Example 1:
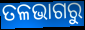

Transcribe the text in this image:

ତଳଭାଗରୁ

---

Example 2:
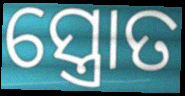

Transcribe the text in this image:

ସ୍ତ୍ରୋତ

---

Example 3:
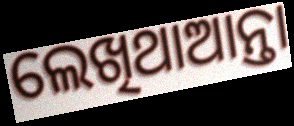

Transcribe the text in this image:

ଲେଖିଥାଆନ୍ତା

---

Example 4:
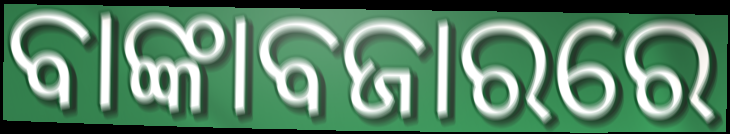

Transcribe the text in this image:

ବାଙ୍କାବଜାରରେ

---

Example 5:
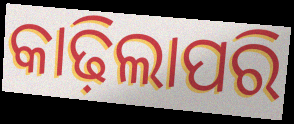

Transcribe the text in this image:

କାଢ଼ିଲାପରି